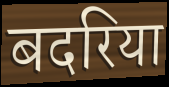
बदरिया